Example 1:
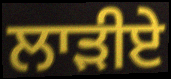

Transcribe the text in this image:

ਲਾੜੀਏ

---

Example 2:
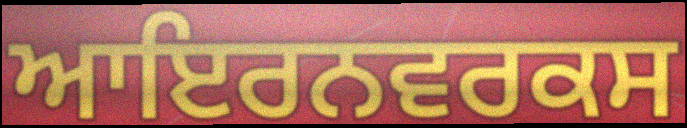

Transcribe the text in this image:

ਆਇਰਨਵਰਕਸ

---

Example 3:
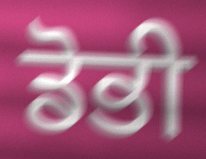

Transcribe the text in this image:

ਡੋਭੀ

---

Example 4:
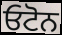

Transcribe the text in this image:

ਓਟੋਨ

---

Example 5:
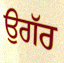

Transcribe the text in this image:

ਉਗੱਰ